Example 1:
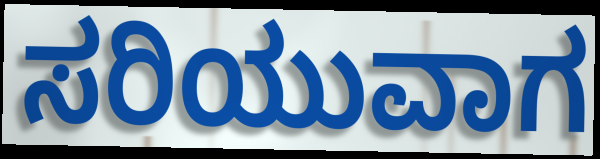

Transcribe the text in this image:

ಸರಿಯುವಾಗ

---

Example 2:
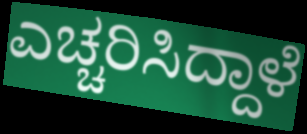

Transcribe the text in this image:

ಎಚ್ಚರಿಸಿದ್ದಾಳೆ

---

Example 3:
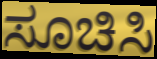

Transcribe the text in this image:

ಸೂಚಿಸಿ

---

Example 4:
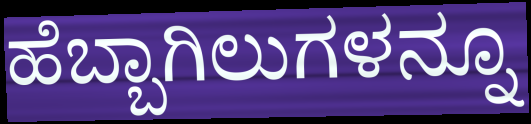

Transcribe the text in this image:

ಹೆಬ್ಬಾಗಿಲುಗಳನ್ನೂ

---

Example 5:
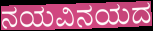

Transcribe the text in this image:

ನಯವಿನಯದ